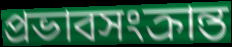
প্রভাবসংক্রান্ত